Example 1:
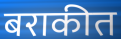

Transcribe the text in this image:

बराकीत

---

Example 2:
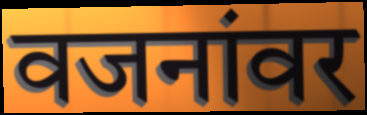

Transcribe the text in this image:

वजनांवर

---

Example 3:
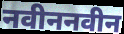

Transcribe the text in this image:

नवीननवीन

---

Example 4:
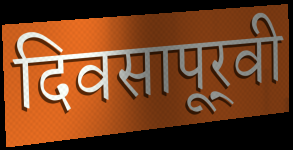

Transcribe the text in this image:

दिवसापूर्वी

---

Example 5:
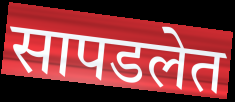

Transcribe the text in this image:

सापडलेत